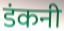
डंकनी